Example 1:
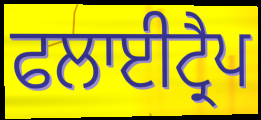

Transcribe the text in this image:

ਫਲਾਈਟ੍ਰੈਪ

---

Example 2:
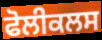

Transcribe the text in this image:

ਫੋਲੀਕਲਸ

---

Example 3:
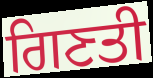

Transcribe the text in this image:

ਗਿਣਤੀ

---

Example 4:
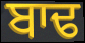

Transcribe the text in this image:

ਬਾਢ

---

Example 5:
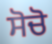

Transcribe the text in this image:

ਸੋਚੋ